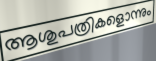
ആശുപത്രികളൊന്നും